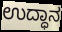
ಉದ್ಧಾನ